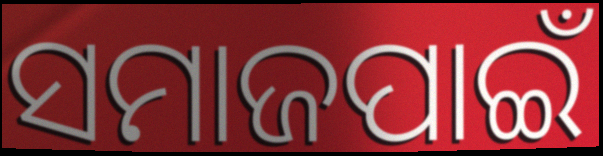
ସମାଜପାଇଁ